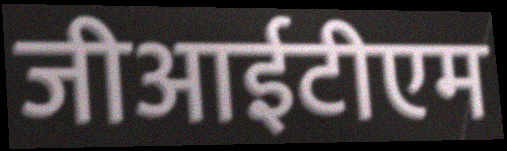
जीआईटीएम